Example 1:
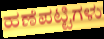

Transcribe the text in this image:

ಹಣೆಪಟ್ಟಿಗಳು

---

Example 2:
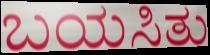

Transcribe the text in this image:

ಬಯಸಿತು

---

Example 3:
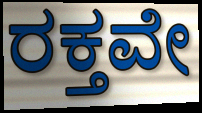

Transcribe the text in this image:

ರಕ್ತವೇ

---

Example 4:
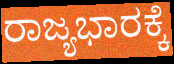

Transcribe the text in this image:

ರಾಜ್ಯಭಾರಕ್ಕೆ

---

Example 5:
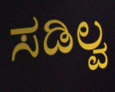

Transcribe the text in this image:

ಸಡಿಲ್ವ